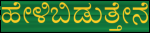
ಹೇಳಿಬಿಡುತ್ತೇನೆ